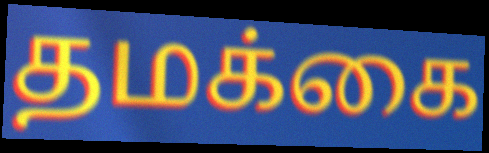
தமக்கை